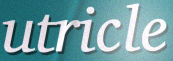
utricle